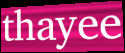
thayee